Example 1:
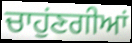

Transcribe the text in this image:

ਚਾਹੁਂਣਗੀਆਂ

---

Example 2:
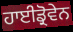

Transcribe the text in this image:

ਹਾਈਡ੍ਰੋਵੇਨ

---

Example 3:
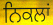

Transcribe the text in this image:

ਨਿਕਲਾਂ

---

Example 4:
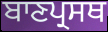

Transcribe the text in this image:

ਬਾਣਪ੍ਰਸਥ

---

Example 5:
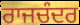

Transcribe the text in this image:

ਰਾਜਚੰਦਰ